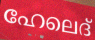
ഹേലെദ്